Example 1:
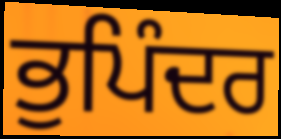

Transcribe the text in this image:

ਭੁਪਿੰਦਰ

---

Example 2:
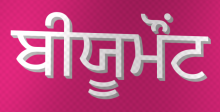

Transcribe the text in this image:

ਬੀਯੂਮੌਂਟ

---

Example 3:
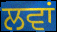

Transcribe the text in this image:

ਲਵਾਂ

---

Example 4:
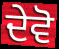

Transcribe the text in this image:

ਦੇਵੋ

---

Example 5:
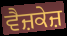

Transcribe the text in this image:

ਵੈਜ਼ਕੇਜ਼